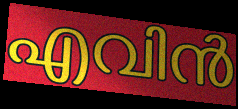
എവിൻ